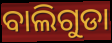
ବାଲିଗୁଡା